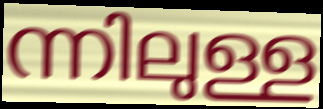
ന്നിലുള്ള